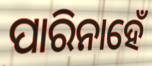
ପାରିନାହେଁ